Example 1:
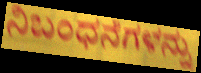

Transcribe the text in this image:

ನಿಬಂಧನೆಗಳನ್ನು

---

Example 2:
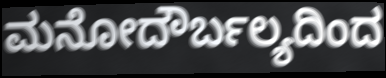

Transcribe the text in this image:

ಮನೋದೌರ್ಬಲ್ಯದಿಂದ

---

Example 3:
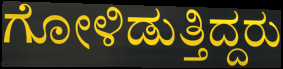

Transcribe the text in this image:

ಗೋಳಿಡುತ್ತಿದ್ದರು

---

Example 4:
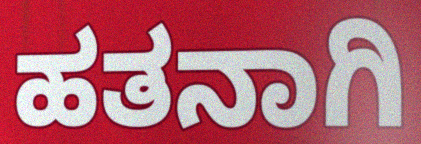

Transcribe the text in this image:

ಹತನಾಗಿ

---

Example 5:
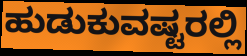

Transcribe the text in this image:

ಹುಡುಕುವಷ್ಟರಲ್ಲಿ